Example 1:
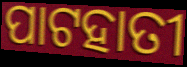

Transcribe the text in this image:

ପାଟହାତୀ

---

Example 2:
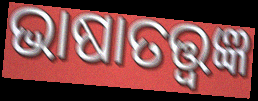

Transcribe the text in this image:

ଭାଷାତତ୍ତ୍ୱଜ୍ଞ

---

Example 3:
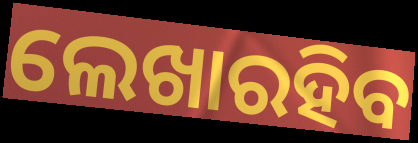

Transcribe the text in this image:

ଲେଖାରହିବ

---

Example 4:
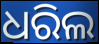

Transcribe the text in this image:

ଧରିଲ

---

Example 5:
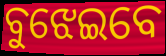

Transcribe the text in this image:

ବୁଝେଇବେ